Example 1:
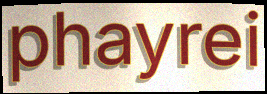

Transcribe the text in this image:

phayrei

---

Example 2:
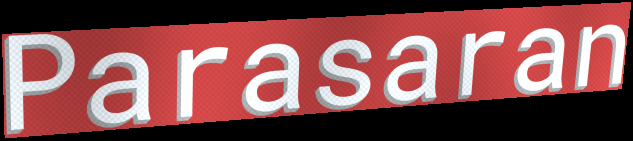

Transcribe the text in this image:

Parasaran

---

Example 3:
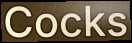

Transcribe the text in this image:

Cocks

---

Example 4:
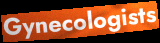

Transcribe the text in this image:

Gynecologists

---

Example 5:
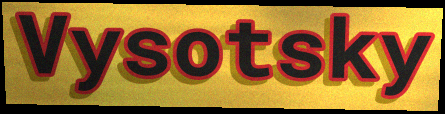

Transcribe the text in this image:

Vysotsky